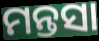
ମନ୍ତସା